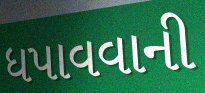
ધપાવવાની